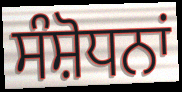
ਸੰਸ਼ੋਧਨਾਂ